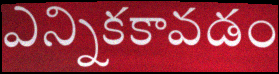
ఎన్నికకావడం